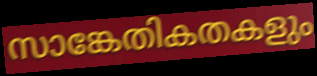
സാങ്കേതികതകളും